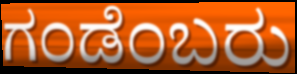
ಗಂಡೆಂಬರು